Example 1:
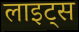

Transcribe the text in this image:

लाइट्स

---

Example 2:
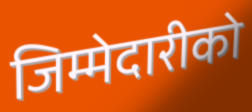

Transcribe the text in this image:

जिम्मेदारीको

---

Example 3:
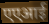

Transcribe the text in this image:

एएआई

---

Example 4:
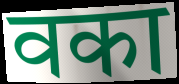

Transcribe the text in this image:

वका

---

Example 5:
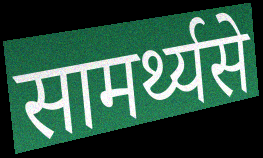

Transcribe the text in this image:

सामर्थ्यसे